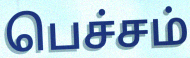
பெச்சம்